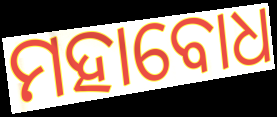
ମହାବୋଧ